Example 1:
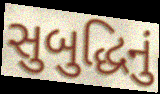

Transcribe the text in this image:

સુબુદ્ધિનું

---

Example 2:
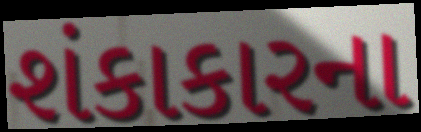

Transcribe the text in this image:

શંકાકારના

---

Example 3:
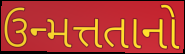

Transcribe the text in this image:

ઉન્મત્તતાનો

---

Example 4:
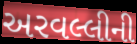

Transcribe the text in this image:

અરવલ્લીની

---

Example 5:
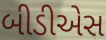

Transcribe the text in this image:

બીડીએસ